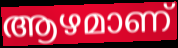
ആഴമാണ്